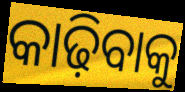
କାଢ଼ିବାକୁ